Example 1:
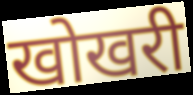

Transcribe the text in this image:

खोखरी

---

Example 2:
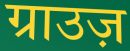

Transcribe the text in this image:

ग्राउज़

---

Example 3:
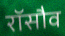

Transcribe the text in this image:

रॉसौव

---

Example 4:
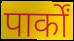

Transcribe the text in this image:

पार्कों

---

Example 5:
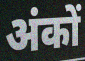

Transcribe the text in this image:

अंकों